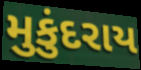
મુકુંદરાય